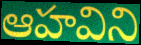
ఆహవిని